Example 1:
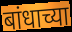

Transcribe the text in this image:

बांधाच्या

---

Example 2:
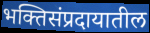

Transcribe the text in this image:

भक्तिसंप्रदायातील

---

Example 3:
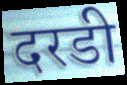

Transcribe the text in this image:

दरडी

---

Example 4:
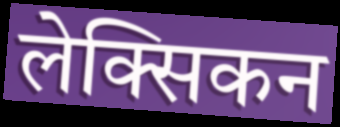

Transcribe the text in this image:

लेक्सिकन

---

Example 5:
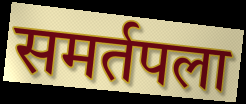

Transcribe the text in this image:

समर्तपला